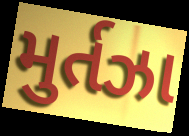
મુર્તઝા